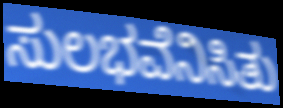
ಸುಲಭವೆನಿಸಿತು